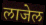
लाजेल